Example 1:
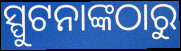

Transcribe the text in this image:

ସ୍ପୁଟନାଙ୍କଠାରୁ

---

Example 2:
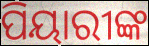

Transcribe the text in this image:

ପିୟାରୀଙ୍କ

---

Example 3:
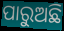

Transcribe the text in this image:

ପାରୁଅଛି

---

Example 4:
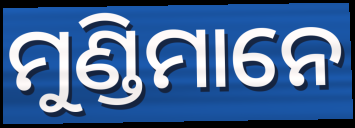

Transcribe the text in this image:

ମୁଣ୍ଡିମାନେ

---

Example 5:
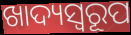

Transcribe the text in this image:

ଖାଦ୍ୟସ୍ୱରୂପ